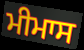
ਮੀਮਾਸ